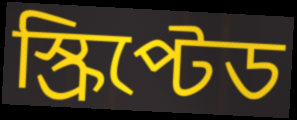
স্ক্রিপ্টেড